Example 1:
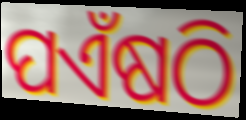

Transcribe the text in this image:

ପଏଁଷଠି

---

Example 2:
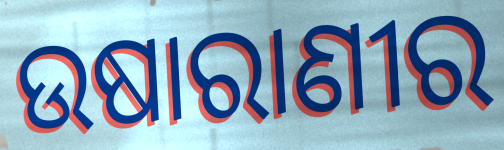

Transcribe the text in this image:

ଉଷାରାଣୀର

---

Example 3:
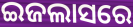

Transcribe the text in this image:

ଇଜଲାସରେ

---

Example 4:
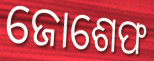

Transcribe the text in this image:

ଜୋଶେଫ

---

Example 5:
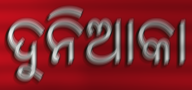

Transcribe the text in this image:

ଦୁନିଆକା